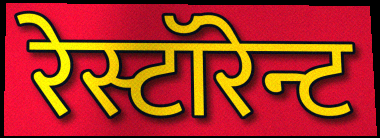
रेस्टॉरेन्ट